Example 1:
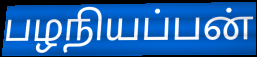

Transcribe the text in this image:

பழநியப்பன்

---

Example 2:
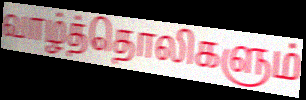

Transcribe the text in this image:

வாழ்த்தொலிகளும்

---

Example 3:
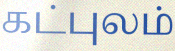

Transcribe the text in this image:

கட்புலம்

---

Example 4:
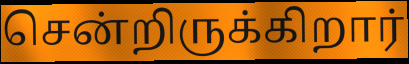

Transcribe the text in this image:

சென்றிருக்கிறார்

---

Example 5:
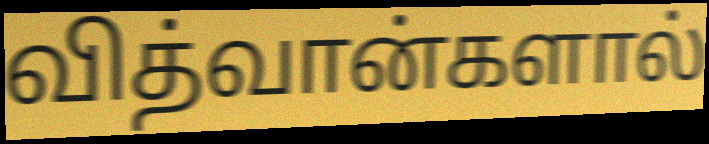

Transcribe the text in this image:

வித்வான்களால்